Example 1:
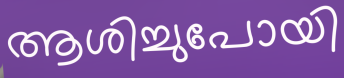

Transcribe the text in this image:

ആശിച്ചുപോയി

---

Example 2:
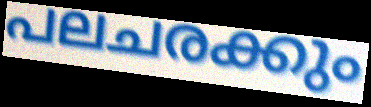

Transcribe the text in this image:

പലചരക്കും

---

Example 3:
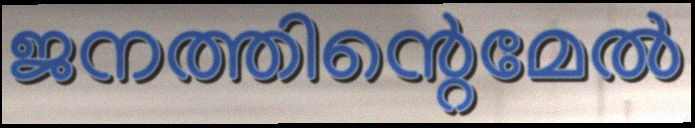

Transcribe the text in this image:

ജനത്തിന്റെമേൽ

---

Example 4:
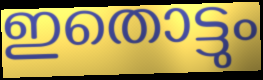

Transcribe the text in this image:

ഇതൊട്ടും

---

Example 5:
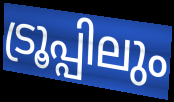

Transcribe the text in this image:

ട്രൂപ്പിലും